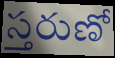
స్తరుణో